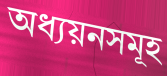
অধ্যয়নসমূহ